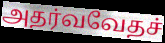
அதர்வவேதச்